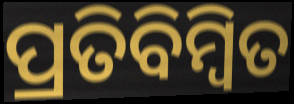
ପ୍ରତିବିମ୍ବିତ